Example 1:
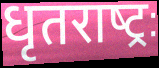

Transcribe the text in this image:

धृतराष्ट्रः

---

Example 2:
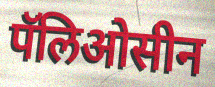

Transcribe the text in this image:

पॅलिओसीन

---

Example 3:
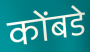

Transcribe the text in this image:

कोंबडे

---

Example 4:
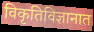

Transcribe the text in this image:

विकृतिविज्ञानात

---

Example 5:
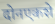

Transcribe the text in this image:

दोनएकशे